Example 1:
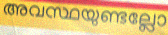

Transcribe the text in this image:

അവസ്ഥയുണ്ടല്ലോ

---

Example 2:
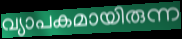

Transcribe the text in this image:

വ്യാപകമായിരുന്ന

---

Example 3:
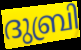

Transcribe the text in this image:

ദുബ്രി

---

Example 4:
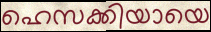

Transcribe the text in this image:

ഹെസക്കിയായെ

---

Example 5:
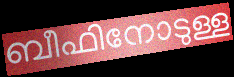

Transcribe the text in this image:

ബീഫിനോടുള്ള